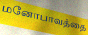
மனோபாவத்தை